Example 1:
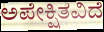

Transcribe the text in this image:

ಅಪೇಕ್ಷಿತವಿದೆ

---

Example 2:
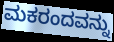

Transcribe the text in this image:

ಮಕರಂದವನ್ನು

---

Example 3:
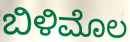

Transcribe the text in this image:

ಬಿಳಿಮೊಲ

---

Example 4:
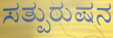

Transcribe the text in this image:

ಸತ್ಪುರುಷನ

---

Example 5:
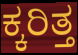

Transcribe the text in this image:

ಕ್ಕರಿತ್ತ